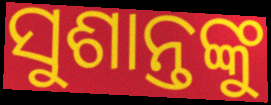
ସୁଶାନ୍ତଙ୍କୁ